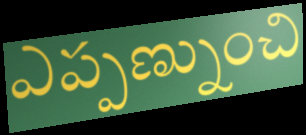
ఎప్పణ్నుంచి